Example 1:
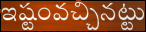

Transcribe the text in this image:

ఇష్టంవచ్చినట్టు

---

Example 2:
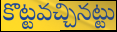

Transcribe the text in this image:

కొట్టవచ్చినట్టు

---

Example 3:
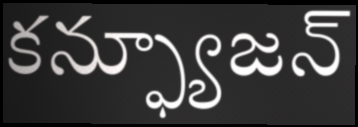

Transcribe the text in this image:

కన్ఫ్యూజన్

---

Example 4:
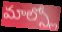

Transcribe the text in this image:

మాల్స్లో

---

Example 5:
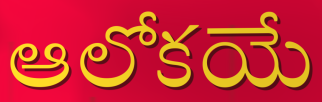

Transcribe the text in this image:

ఆలోకయే